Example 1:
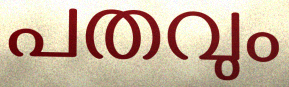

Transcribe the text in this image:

പതവും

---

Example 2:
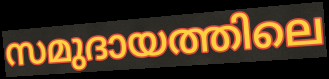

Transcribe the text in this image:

സമുദായത്തിലെ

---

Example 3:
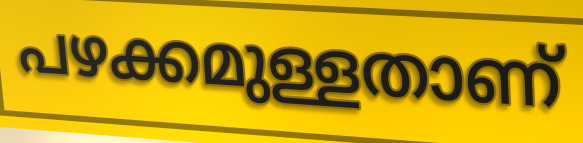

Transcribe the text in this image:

പഴക്കമുള്ളതാണ്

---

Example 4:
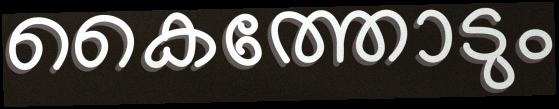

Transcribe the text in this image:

കൈത്തോടും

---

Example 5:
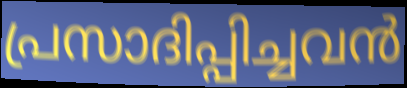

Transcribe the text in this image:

പ്രസാദിപ്പിച്ചവൻ